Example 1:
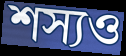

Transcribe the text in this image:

শস্যও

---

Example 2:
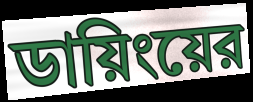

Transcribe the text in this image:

ডায়িংয়ের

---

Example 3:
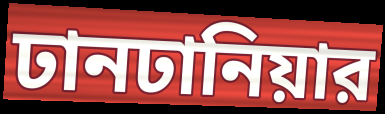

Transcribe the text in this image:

ঢানঢানিয়ার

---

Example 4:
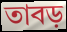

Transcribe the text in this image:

তাবড়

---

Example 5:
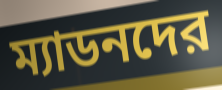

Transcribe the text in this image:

ম্যাডনদের